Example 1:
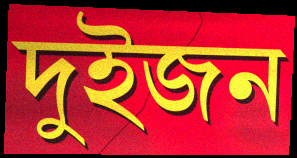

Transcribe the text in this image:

দুইজন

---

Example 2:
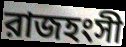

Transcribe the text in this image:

রাজহংসী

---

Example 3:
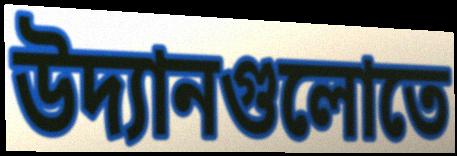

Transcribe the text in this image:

উদ্যানগুলোতে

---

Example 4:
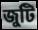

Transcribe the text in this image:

জুটি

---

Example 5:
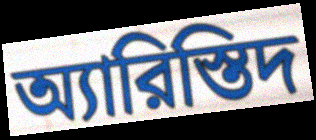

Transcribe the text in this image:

অ্যারিস্তিদ